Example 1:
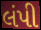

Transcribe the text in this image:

લંપી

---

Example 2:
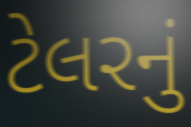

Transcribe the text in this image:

ટેલરનું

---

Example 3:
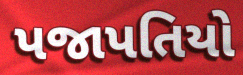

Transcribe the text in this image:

પજાપતિયો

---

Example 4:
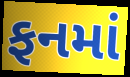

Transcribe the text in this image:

ફનમાં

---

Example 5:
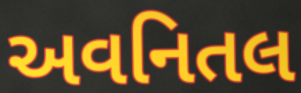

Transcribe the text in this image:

અવનિતલ